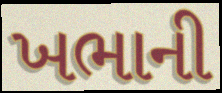
ખભાની